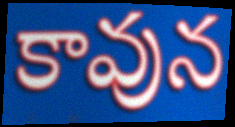
కావున